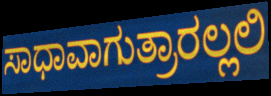
ಸಾಧಾವಾಗುತ್ರಾರಲ್ಲಲಿ